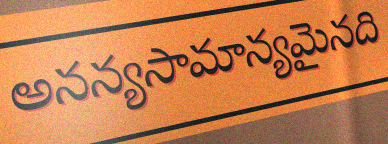
అనన్యసామాన్యమైనది